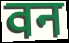
वन